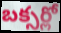
బక్సర్లో